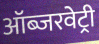
ऑब्जरवेट्री